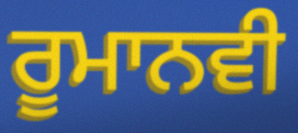
ਰੂਮਾਨਵੀ